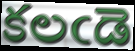
కలఁడె